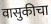
वासुकीचा